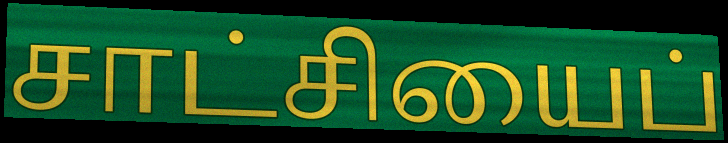
சாட்சியைப்